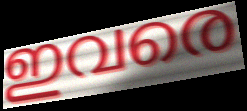
ഇവരെ